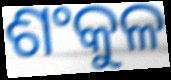
ଶଂକୁଳ